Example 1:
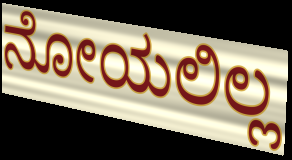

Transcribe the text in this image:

ನೋಯಲಿಲ್ಲ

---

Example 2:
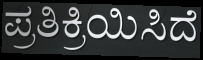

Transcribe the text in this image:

ಪ್ರತಿಕ್ರಿಯಿಸಿದೆ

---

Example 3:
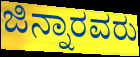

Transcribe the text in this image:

ಜಿನ್ನಾರವರು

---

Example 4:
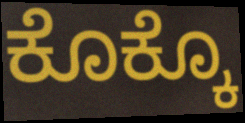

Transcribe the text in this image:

ಕೊಕ್ಕೊ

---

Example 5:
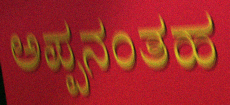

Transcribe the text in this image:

ಅಪ್ಪನಂತಹ